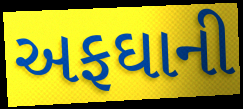
અફઘાની